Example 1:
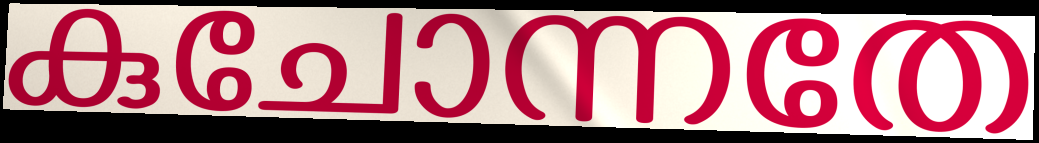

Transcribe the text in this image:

കുചോന്നതേ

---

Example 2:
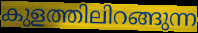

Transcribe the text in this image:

കുളത്തിലിറങ്ങുന്ന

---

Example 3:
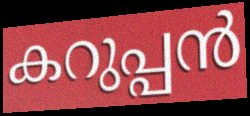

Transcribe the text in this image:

കറുപ്പൻ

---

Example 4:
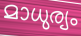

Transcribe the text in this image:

മാധുര്യം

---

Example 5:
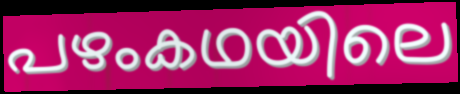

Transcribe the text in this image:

പഴംകഥയിലെ